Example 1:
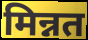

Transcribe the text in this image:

मिन्नत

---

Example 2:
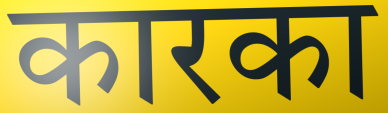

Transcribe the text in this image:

कारका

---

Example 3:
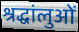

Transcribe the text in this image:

श्रद्धांलुओं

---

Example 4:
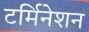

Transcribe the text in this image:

टर्मिनेशन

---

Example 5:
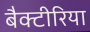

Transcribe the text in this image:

बैक्टीरिया